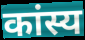
कांस्य